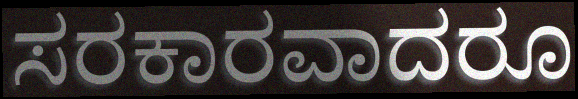
ಸರಕಾರವಾದರೂ